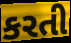
કરતી